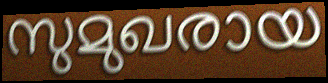
സുമുഖരായ